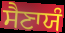
ਸੈਣਾਯੰ